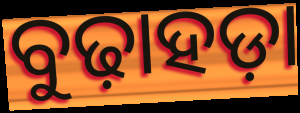
ବୁଢ଼ାହଡ଼ା